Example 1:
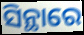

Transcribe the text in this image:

ସିନ୍ଥାରେ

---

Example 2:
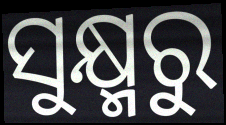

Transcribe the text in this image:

ସୁକ୍ଷ୍ମରୁ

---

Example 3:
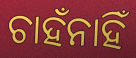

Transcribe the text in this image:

ଚାହଁନାହିଁ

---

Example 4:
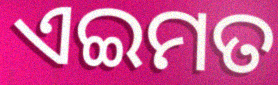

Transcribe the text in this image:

ଏଇମତ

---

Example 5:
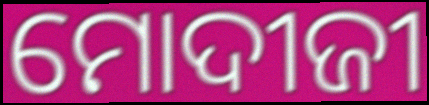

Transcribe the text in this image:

ମୋଦୀଜୀ